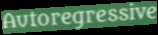
Autoregressive